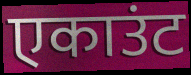
एकाउंट